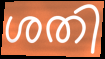
ശതി